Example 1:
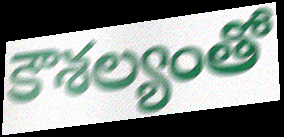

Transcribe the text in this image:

కౌశల్యంతో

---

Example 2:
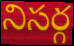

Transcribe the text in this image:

నిసర్గ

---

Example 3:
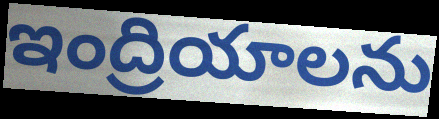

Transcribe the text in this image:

ఇంద్రియాలను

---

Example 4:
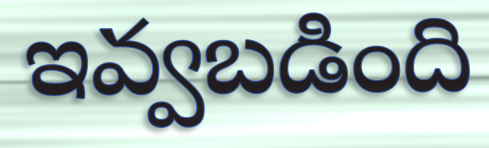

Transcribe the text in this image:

ఇవ్వబడింది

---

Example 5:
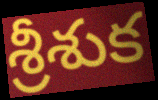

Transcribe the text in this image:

శ్రీశుక